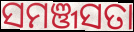
ସମଞ୍ଜସତା